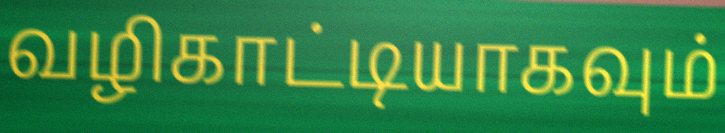
வழிகாட்டியாகவும்